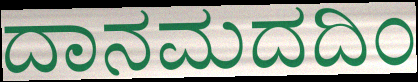
ದಾನಮದದಿಂ